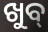
ଖୁବ୍